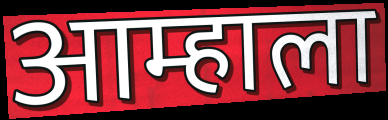
आम्हाला